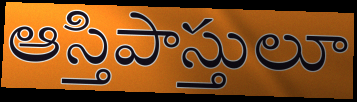
ఆస్తిపాస్తులూ